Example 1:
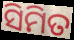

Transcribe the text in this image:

ସିମିତ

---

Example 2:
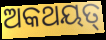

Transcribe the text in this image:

ଅକଥୟତ୍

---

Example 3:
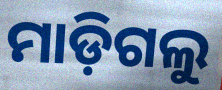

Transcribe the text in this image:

ମାଡ଼ିଗଲୁ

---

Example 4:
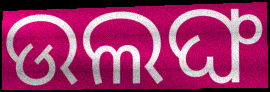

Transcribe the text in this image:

ଉଲଙ୍ଘ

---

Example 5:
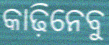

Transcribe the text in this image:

କାଢ଼ିନେବୁ